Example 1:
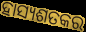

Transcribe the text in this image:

ହାସ୍ୟଶତକର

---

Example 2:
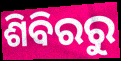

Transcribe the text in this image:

ଶିବିରରୁ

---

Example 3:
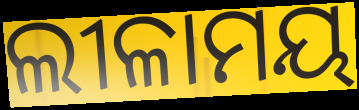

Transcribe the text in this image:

ଲୀଳାମୟ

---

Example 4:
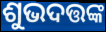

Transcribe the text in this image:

ଶୁଭଦତ୍ତଙ୍କ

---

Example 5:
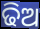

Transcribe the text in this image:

ଢିଅ